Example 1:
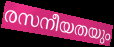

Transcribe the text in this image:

രസനീയതയും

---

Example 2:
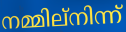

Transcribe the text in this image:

നമ്മില്നിന്ന്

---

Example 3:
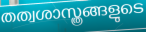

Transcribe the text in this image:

തത്വശാസ്ത്രങ്ങളുടെ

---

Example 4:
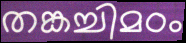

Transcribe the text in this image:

തങ്കച്ചിമഠം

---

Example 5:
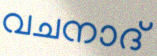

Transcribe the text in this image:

വചനാദ്